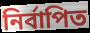
নির্বাপিত